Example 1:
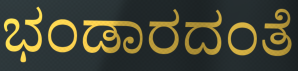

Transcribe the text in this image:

ಭಂಡಾರದಂತೆ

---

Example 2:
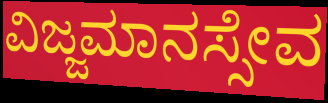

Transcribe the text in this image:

ವಿಜ್ಜಮಾನಸ್ಸೇವ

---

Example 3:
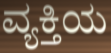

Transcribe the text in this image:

ವ್ಯಕ್ತಿಯ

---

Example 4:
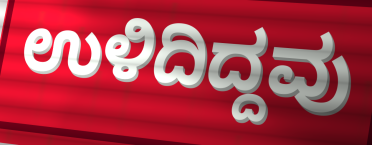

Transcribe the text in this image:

ಉಳಿದಿದ್ದವು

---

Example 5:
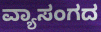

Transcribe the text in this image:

ವ್ಯಾಸಂಗದ